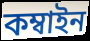
কম্বাইন